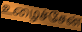
உழைச்சேன்